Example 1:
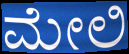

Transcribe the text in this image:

ಮೇಲಿ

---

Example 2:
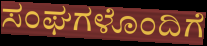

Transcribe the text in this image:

ಸಂಘಗಳೊಂದಿಗೆ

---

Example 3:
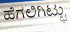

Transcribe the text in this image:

ಹೆಗಲಿಗಿಟ್ಟು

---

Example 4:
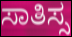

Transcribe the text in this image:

ಸಾತಿಸ್ಸ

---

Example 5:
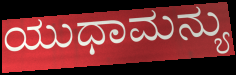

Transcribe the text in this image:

ಯುಧಾಮನ್ಯು